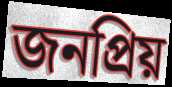
জনপ্ৰিয়